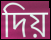
দিয়